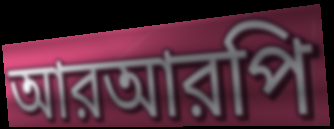
আরআরপি